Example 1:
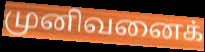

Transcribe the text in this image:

முனிவனைக்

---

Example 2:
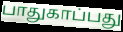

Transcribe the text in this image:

பாதுகாப்பது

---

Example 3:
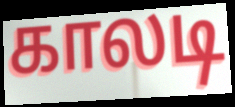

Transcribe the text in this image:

காலடி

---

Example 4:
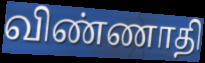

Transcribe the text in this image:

விண்ணாதி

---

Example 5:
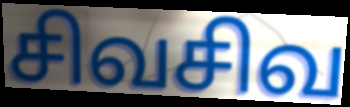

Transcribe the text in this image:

சிவசிவ